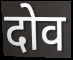
दोव